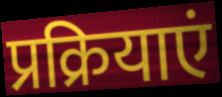
प्रक्रियाएं